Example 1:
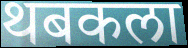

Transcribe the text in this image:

थबकला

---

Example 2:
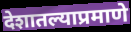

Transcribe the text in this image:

देशातल्याप्रमाणे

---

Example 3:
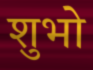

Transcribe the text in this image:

शुभो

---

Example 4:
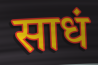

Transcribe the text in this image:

साधं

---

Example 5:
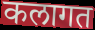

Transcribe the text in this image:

कलागत